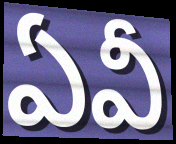
ఏవీ